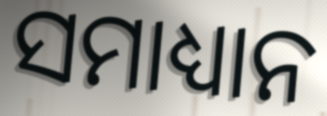
ସମାଧ୍ୟାନ